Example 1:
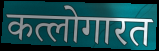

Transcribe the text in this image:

कत्लोगारत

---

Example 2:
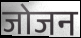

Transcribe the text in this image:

जोजन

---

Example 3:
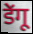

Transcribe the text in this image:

डेंगू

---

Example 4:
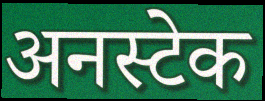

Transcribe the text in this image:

अनस्टेक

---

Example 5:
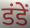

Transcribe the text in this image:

डंडें